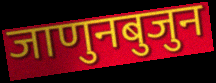
जाणुनबुजुन